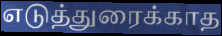
எடுத்துரைக்காத